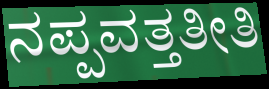
ನಪ್ಪವತ್ತತೀತಿ